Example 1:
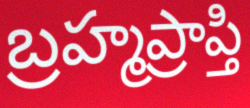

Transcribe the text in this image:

బ్రహ్మప్రాప్తి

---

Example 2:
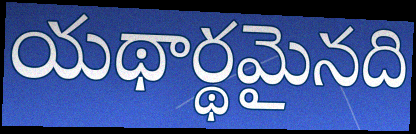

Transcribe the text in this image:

యథార్థమైనది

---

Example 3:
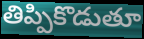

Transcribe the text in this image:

తిప్పికొడుతూ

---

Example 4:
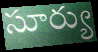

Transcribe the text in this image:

సూర్యు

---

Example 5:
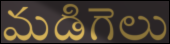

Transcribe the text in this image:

మడిగెలు